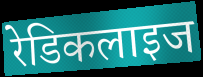
रेडिकलाइज